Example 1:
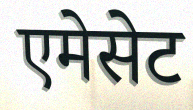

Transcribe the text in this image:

एमेसेट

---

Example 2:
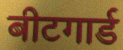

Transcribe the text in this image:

बीटगार्ड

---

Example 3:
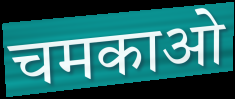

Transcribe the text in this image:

चमकाओ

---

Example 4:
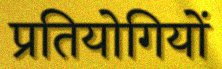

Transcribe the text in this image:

प्रतियोगियों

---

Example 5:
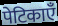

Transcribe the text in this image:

पेटिकाएँ